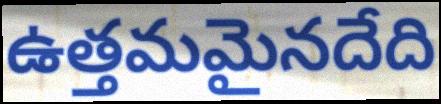
ఉత్తమమైనదేది